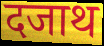
दजाथ